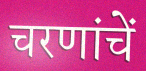
चरणांचें